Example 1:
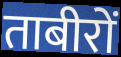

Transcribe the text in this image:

ताबीरों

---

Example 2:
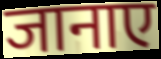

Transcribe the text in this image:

जानाए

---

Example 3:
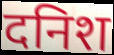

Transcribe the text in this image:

दनिश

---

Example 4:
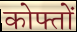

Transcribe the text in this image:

कोफ्तों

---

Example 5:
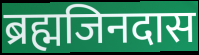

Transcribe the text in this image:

ब्रह्मजिनदास